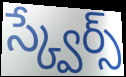
స్క్వేర్స్